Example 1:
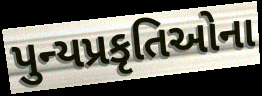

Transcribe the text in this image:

પુન્યપ્રકૃતિઓના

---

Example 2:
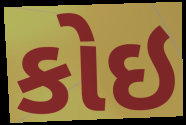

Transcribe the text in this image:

કોઇ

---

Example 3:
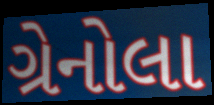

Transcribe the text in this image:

ગ્રેનોલા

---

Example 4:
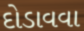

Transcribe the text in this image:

દોડાવવા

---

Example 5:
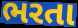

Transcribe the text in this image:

ભરતા